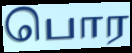
பொர